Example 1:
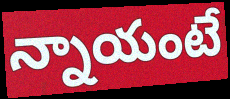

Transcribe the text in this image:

న్నాయంటే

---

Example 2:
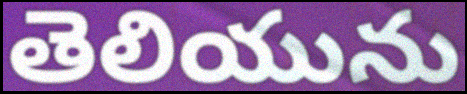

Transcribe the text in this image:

తెలియును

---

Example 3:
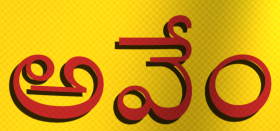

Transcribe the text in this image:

అవేం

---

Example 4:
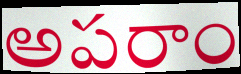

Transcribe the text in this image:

అపరాం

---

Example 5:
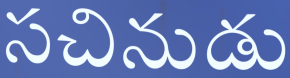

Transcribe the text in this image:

సచినుడు